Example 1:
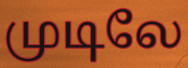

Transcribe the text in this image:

முடிலே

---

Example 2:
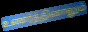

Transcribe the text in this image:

உணர்த்தினாலும்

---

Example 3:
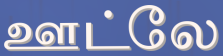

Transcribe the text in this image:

ஊட்லே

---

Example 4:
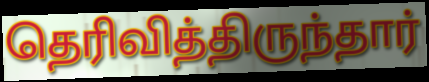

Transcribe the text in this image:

தெரிவித்திருந்தார்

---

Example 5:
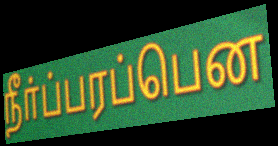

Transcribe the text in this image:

நீர்ப்பரப்பென